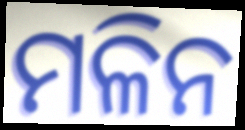
ମଳିନ